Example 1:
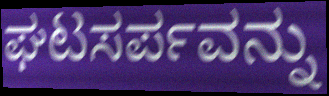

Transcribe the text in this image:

ಘಟಸರ್ಪವನ್ನು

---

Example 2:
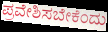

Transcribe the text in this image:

ಪ್ರವೇಶಿಸಬೇಕೆಂದು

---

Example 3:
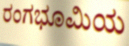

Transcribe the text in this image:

ರಂಗಭೂಮಿಯ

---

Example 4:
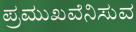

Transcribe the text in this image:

ಪ್ರಮುಖವೆನಿಸುವ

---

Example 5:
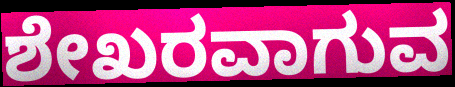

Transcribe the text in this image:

ಶೇಖರವಾಗುವ